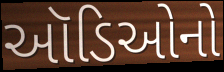
ઑડિઓનો